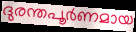
ദുരന്തപൂർണമായ